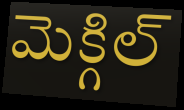
మెక్గిల్